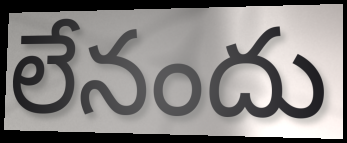
లేనందు